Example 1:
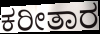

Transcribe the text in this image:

ಕರೀತಾರ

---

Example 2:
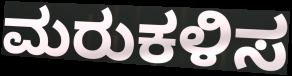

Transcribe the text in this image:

ಮರುಕಳಿಸ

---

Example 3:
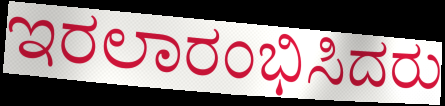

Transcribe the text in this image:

ಇರಲಾರಂಭಿಸಿದರು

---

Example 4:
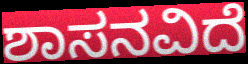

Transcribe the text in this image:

ಶಾಸನವಿದೆ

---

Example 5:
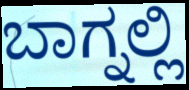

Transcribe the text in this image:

ಬಾಗ್ನಲ್ಲಿ